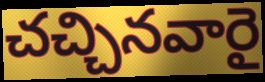
చచ్చినవారై